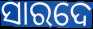
ସାରଦେ